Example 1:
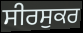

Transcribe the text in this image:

ਸੀਰਸੁਕਰ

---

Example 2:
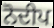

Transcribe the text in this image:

ਨੋਦੀਪ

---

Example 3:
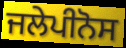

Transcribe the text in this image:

ਜਲੇਪੀਨੋਸ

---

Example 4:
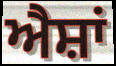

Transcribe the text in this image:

ਐਸ਼ਾਂ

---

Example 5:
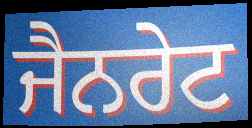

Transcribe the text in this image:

ਜੈਨਰੇਟ